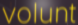
volunt